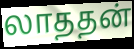
லாததன்